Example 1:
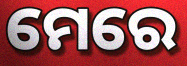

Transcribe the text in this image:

ମେରେ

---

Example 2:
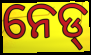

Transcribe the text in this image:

ନେଡ୍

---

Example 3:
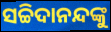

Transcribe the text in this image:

ସଚ୍ଚିଦାନନ୍ଦଙ୍କୁ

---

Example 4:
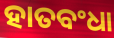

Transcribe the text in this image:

ହାତବଂଧା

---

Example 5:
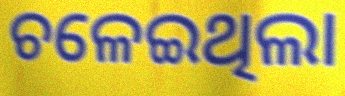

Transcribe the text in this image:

ଚଳେଇଥିଲା